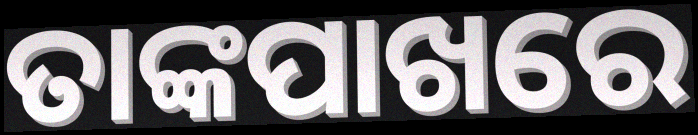
ତାଙ୍କପାଖରେ